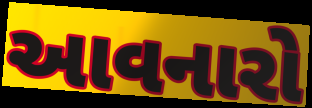
આવનારો